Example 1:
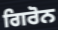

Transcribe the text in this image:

ਗਿਰੋਨ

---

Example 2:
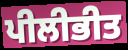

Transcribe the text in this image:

ਪੀਲੀਭੀਤ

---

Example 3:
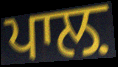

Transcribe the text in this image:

ਪਾਲ਼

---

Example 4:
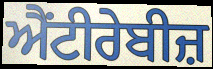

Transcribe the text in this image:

ਐਂਟੀਰੇਬੀਜ਼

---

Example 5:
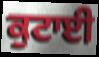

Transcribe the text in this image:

ਕੁਟਾਈ